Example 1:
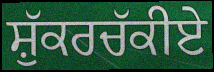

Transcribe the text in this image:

ਸ਼ੁੱਕਰਚੱਕੀਏ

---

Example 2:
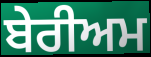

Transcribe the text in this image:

ਬੇਰੀਅਮ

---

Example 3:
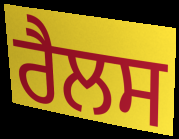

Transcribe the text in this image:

ਰੈਲਸ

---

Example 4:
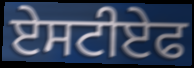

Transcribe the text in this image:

ਏਸਟੀਏਫ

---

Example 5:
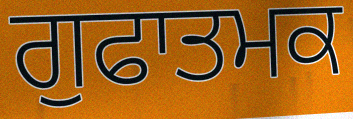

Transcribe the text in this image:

ਗੁਫਾਤਮਕ